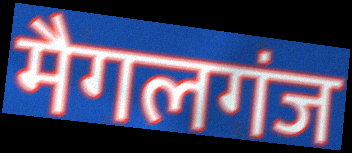
मैगलगंज